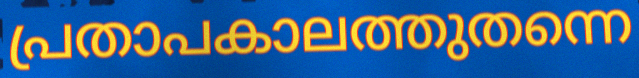
പ്രതാപകാലത്തുതന്നെ